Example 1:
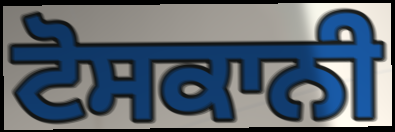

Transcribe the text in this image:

ਟੋਸਕਾਨੀ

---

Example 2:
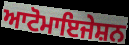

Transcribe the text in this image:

ਆਟੋਮਾਇਜੇਸ਼ਨ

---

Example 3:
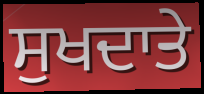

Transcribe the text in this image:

ਸੁਖਦਾਤੇ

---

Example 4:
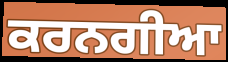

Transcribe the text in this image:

ਕਰਨਗੀਆ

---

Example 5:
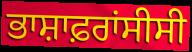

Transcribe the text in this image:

ਭਾਸ਼ਾਫ਼ਰਾਂਸੀਸੀ